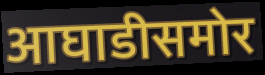
आघाडीसमोर